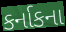
કર્નાકના